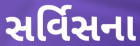
સર્વિસના